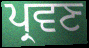
ਪ੍ਰਵਣ